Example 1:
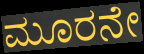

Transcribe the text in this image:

ಮೂರನೇ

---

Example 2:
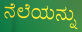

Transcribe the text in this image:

ನೆಲೆಯನ್ನು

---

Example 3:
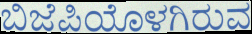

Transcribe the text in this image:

ಬಿಜೆಪಿಯೊಳಗಿರುವ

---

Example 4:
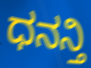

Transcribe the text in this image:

ಧನನ್ತಿ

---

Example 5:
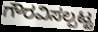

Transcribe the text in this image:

ಗೌರವಿಸಲ್ಪಟ್ಟ